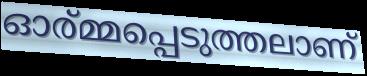
ഓര്മ്മപ്പെടുത്തലാണ്